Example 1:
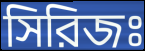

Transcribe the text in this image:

সিরিজঃ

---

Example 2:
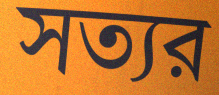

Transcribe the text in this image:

সত্যর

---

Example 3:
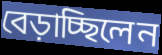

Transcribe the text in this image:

বেড়াচ্ছিলেন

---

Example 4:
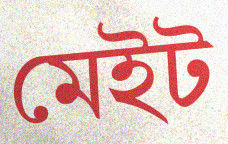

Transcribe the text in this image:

মেইট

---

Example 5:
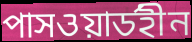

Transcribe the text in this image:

পাসওয়ার্ডহীন